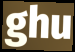
ghu